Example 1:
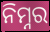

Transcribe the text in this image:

ନିମ୍ନର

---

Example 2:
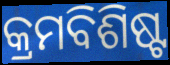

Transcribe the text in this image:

କ୍ରମବିଶିଷ୍ଟ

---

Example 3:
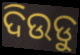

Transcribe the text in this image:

ଦିଉଡୁ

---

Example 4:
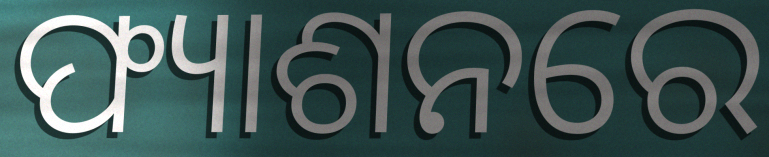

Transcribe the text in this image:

ଫ୍ୟାଶନରେ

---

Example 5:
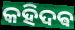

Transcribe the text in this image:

କହିଦଵ